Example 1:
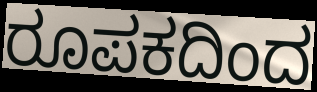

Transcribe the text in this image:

ರೂಪಕದಿಂದ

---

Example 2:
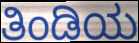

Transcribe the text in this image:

ತಿಂಡಿಯ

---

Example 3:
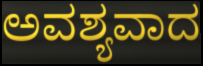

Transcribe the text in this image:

ಅವಶ್ಯವಾದ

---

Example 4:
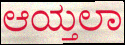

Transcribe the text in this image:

ಆಯ್ತಲಾ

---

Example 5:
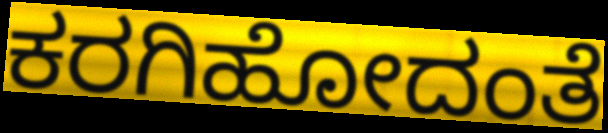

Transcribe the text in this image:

ಕರಗಿಹೋದಂತೆ